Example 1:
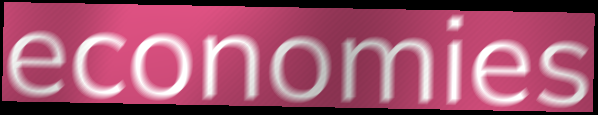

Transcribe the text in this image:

economies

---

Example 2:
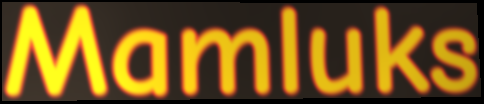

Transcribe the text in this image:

Mamluks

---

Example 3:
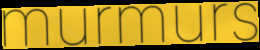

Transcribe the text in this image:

murmurs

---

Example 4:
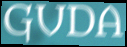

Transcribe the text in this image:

GUDA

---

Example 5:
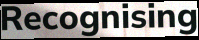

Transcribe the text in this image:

Recognising